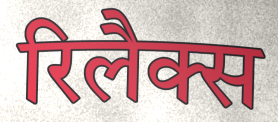
रिलैक्‍स